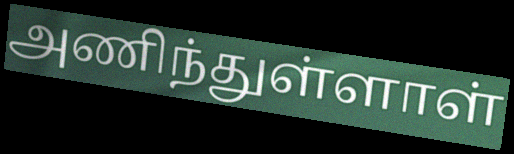
அணிந்துள்ளாள்